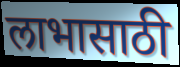
लाभासाठी